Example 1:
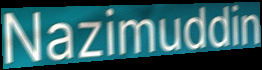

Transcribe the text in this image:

Nazimuddin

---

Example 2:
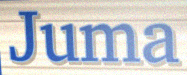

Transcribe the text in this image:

Juma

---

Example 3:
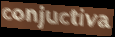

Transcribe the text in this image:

conjuctiva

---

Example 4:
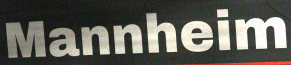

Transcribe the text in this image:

Mannheim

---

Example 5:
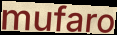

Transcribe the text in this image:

mufaro